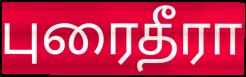
புரைதீரா